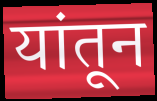
यांतून